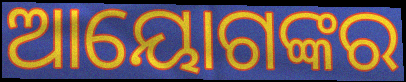
ଆୟୋଗଙ୍କର